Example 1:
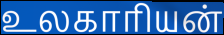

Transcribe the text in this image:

உலகாரியன்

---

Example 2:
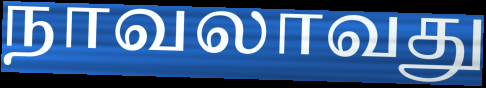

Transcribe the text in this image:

நாவலாவது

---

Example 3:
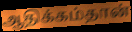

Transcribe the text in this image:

ஆதிக்கம்தான்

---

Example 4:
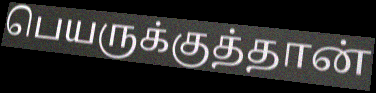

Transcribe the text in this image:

பெயருக்குத்தான்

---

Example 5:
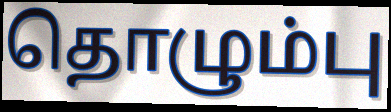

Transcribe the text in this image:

தொழும்பு